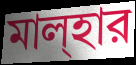
মাল্হার